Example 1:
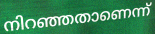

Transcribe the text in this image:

നിറഞ്ഞതാണെന്ന്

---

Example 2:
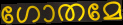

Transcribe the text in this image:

ഗോതമേ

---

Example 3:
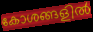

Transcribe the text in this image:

കോശങ്ങളിൽ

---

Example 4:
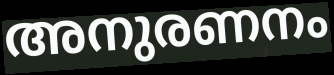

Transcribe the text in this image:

അനുരണനം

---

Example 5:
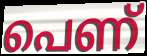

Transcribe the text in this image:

പെണ്